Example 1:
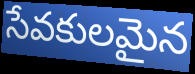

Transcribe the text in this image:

సేవకులమైన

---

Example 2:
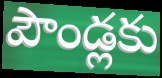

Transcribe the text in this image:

పౌండ్లకు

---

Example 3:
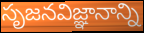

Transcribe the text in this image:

సృజనవిజ్ఞానాన్ని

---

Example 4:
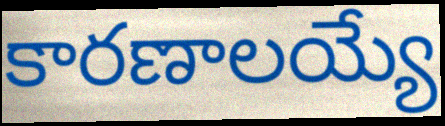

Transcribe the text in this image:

కారణాలయ్యే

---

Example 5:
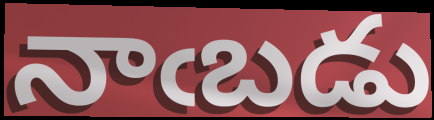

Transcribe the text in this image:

నాఁబడు